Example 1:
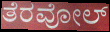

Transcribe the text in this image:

ತೆರವೋಲ್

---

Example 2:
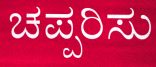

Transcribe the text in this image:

ಚಪ್ಪರಿಸು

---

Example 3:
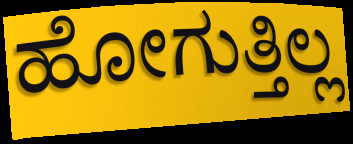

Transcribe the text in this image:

ಹೋಗುತ್ತಿಲ್ಲ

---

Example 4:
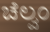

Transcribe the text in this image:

ಚೆಲ್ವಂ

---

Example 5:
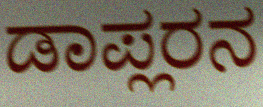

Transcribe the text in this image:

ಡಾಪ್ಲರನ